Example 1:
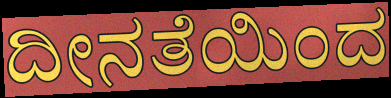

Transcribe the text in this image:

ದೀನತೆಯಿಂದ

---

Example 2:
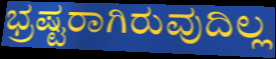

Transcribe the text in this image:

ಭ್ರಷ್ಟರಾಗಿರುವುದಿಲ್ಲ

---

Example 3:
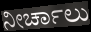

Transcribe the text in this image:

ನೀರ್ಚಾಲು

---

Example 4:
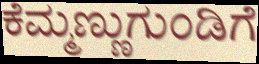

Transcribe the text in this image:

ಕೆಮ್ಮಣ್ಣುಗುಂಡಿಗೆ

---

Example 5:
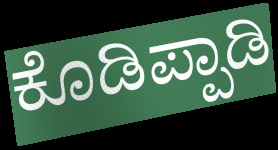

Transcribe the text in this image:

ಕೊಡಿಪ್ಪಾಡಿ